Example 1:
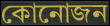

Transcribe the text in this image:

কোনোজন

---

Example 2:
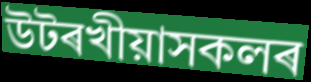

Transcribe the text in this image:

উটৰখীয়াসকলৰ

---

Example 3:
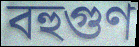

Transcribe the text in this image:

বহুগুণ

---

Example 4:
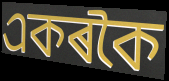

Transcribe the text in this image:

একৰকৈ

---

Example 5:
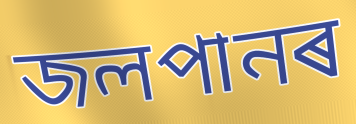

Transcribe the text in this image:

জলপানৰ